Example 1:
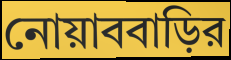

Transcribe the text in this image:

নোয়াববাড়ির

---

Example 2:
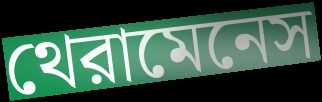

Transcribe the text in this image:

থেরামেনেস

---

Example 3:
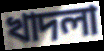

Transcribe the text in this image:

খাদলা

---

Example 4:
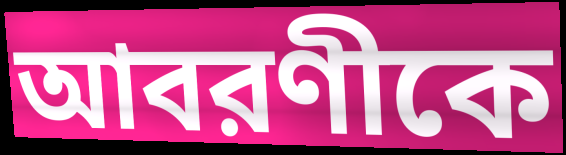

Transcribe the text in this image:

আবরণীকে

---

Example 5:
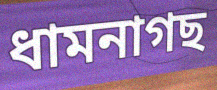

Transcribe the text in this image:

ধামনাগছ